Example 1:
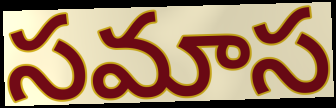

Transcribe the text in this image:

సమాస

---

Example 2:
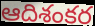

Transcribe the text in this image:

ఆదిశంకర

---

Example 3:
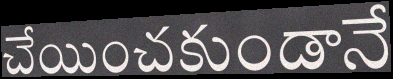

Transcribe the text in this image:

చేయించకుండానే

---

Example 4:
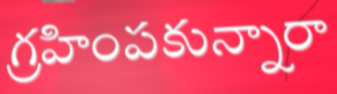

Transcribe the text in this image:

గ్రహింపకున్నారా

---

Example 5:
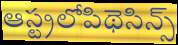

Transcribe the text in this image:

ఆస్ట్రలోపిథెసిన్స్